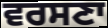
ਵਰਸਣਾ